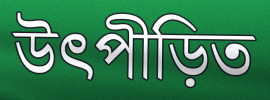
উৎপীড়িত